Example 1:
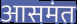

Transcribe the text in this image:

आसमंत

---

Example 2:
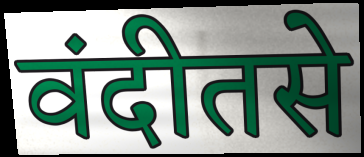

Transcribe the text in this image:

वंदीतसे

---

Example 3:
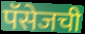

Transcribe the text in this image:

पॅसेजची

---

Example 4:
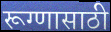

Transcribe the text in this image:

रूग्णासाठी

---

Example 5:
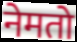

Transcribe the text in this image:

नेमतो